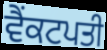
ਵੈਂਕਟਪਤੀ